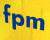
fpm